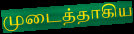
முடைத்தாகிய